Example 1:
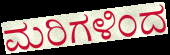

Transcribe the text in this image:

ಮರಿಗಳಿಂದ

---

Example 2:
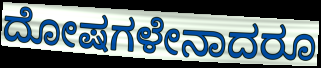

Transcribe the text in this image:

ದೋಷಗಳೇನಾದರೂ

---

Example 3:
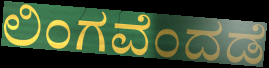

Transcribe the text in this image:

ಲಿಂಗವೆಂದಡೆ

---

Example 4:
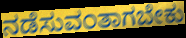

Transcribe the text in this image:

ನಡೆಸುವಂತಾಗಬೇಕು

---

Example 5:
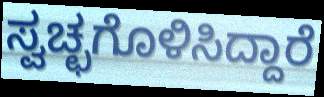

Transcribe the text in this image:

ಸ್ವಚ್ಛಗೊಳಿಸಿದ್ದಾರೆ